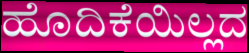
ಹೊದಿಕೆಯಿಲ್ಲದ